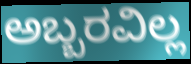
ಅಬ್ಬರವಿಲ್ಲ